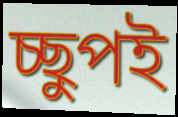
চ্ছুপই